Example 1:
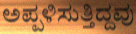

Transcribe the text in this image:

ಅಪ್ಪಳಿಸುತ್ತಿದ್ದವು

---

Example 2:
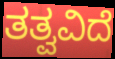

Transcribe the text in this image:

ತತ್ವವಿದೆ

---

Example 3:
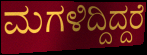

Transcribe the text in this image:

ಮಗಳಿದ್ದಿದ್ದರೆ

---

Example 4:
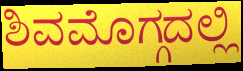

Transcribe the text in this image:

ಶಿವಮೊಗ್ಗದಲ್ಲಿ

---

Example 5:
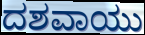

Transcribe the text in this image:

ದಶವಾಯು